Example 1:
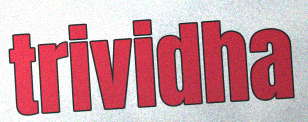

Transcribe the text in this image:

trividha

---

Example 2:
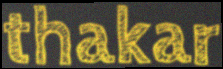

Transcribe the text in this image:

thakar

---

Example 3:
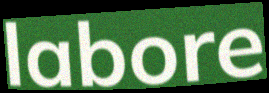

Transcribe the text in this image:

labore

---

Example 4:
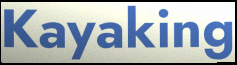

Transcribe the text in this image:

Kayaking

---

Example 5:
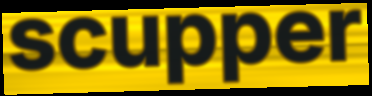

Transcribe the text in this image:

scupper